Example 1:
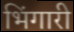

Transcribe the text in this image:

भिंगारी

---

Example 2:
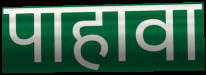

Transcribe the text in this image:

पाहावा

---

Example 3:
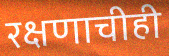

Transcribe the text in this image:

रक्षणाचीही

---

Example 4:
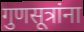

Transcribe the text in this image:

गुणसूत्रांना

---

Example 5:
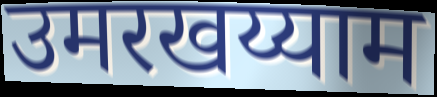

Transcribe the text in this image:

उमरखय्याम